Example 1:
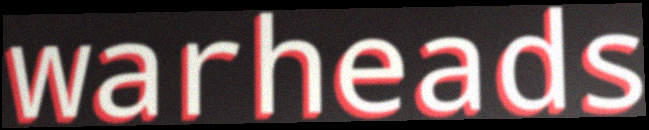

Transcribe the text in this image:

warheads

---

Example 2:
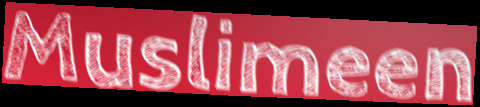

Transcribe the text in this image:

Muslimeen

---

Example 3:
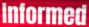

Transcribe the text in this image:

Informed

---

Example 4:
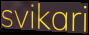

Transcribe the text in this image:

svikari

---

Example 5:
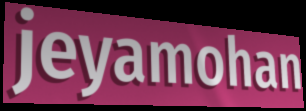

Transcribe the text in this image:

jeyamohan